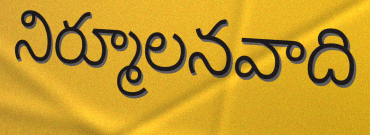
నిర్మూలనవాది